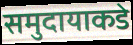
समुदायाकडे